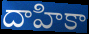
దాహికా